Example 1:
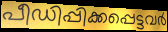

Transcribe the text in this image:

പീഡിപ്പിക്കപ്പെട്ടവർ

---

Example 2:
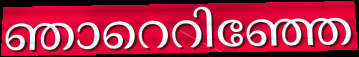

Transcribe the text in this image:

ഞാറെറിഞ്ഞേ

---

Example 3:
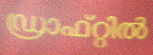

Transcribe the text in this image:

ഡ്രാഫ്റ്റിൽ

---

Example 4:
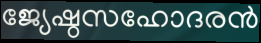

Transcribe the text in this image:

ജ്യേഷ്ഠസഹോദരൻ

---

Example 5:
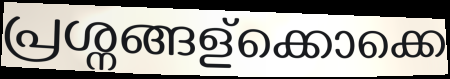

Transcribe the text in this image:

പ്രശ്നങ്ങള്ക്കൊക്കെ